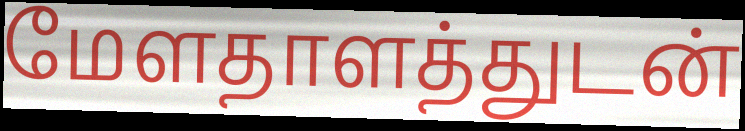
மேளதாளத்துடன்